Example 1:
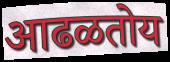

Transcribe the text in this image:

आढळतोय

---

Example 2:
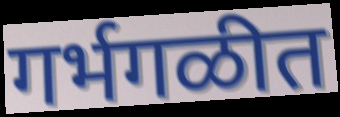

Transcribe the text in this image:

गर्भगळीत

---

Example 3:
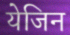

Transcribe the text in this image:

येजिन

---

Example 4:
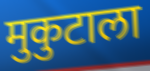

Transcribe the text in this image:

मुकुटाला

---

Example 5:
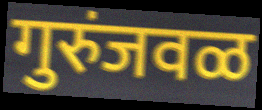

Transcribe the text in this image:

गुरुंजवळ